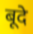
बूदे